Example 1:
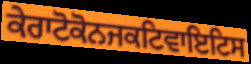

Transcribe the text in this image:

ਕੇਰਾਟੋਕੋਨਜਕਟਿਵਾਇਟਿਸ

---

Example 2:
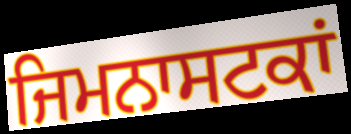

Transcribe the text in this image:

ਜਿਮਨਾਸਟਕਾਂ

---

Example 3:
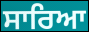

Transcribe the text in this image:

ਸਾਰਿਆ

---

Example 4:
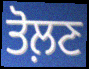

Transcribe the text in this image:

ਤੋਲ਼ਣ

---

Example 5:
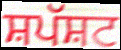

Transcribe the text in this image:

ਸ਼ਪੱਸ਼ਟ